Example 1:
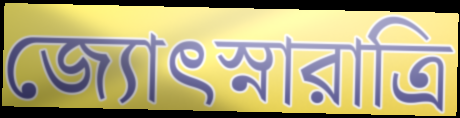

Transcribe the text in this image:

জ্যোৎস্নারাত্রি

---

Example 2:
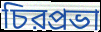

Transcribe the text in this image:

চিরপ্রভা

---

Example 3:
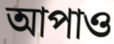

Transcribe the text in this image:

আপাও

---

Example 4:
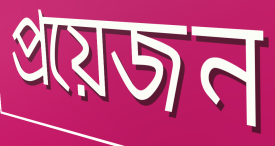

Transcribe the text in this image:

প্রয়েজন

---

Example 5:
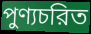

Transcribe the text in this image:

পুণ্যচরিত